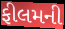
ફીલમની